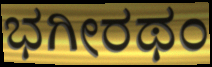
ಭಗೀರಥಂ